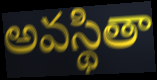
అవస్థితా